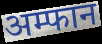
अम्फान